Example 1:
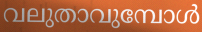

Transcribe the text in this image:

വലുതാവുമ്പോൾ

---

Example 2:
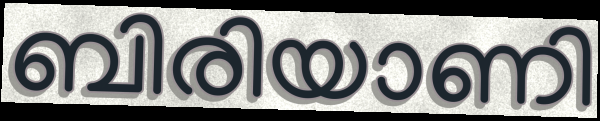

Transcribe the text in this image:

ബിരിയാണി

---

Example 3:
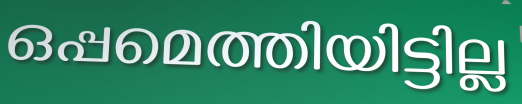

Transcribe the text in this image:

ഒപ്പമെത്തിയിട്ടില്ല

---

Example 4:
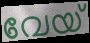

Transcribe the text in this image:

വേയ്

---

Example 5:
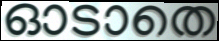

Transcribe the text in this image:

ഓടാതെ